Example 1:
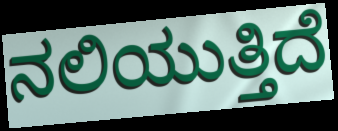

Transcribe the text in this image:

ನಲಿಯುತ್ತಿದೆ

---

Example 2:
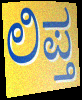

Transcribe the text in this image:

ಲಿಪ್ತ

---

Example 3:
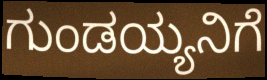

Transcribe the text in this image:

ಗುಂಡಯ್ಯನಿಗೆ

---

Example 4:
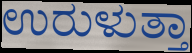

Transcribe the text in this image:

ಉರುಳುತ್ತಾ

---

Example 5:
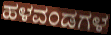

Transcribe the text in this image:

ಹಳವಂಡಗಳ